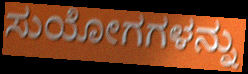
ಸುಯೋಗಗಳನ್ನು